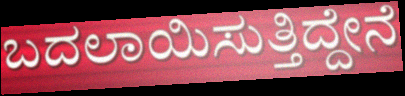
ಬದಲಾಯಿಸುತ್ತಿದ್ದೇನೆ